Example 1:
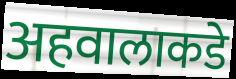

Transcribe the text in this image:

अहवालाकडे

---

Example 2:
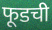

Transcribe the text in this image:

फूडची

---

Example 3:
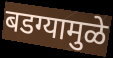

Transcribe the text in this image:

बडग्यामुळे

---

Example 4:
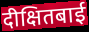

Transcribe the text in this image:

दीक्षितबाई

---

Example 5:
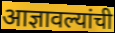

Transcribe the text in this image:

आज्ञावल्यांची